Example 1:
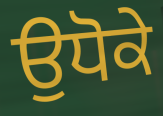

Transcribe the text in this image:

ਉਧੋਕੇ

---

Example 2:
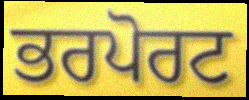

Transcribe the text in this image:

ਭਰਪੋਰਟ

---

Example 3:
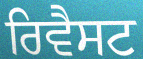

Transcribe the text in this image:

ਰਿਵੈਸਟ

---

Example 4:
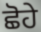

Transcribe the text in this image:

ਛੋਹੇ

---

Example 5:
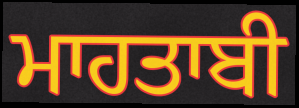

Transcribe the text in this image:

ਮਾਹਤਾਬੀ